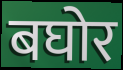
बघोर